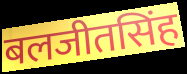
बलजीतसिंह